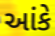
આંકે